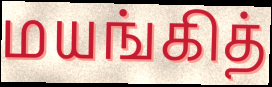
மயங்கித்